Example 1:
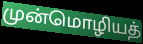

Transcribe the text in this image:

முன்மொழியத்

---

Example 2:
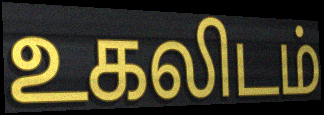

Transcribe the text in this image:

உகலிடம்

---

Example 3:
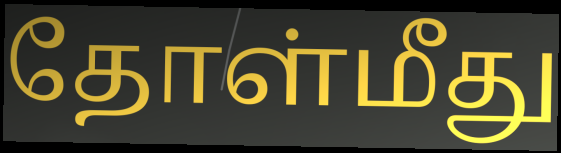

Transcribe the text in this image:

தோள்மீது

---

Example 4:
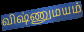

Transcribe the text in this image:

விஷ்ணுமயம்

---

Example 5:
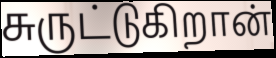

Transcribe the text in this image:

சுருட்டுகிறான்